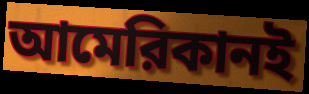
আমেরিকানই